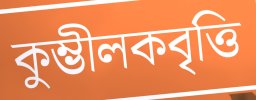
কুম্ভীলকবৃত্তি